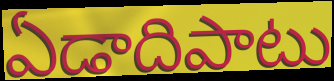
ఏడాదిపాటు